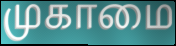
முகாமை